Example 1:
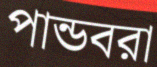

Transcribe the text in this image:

পান্ডবরা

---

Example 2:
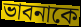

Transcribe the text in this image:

ভাবনাকে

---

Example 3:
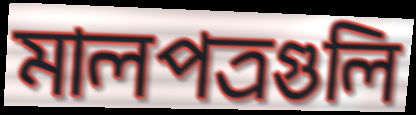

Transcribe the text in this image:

মালপত্রগুলি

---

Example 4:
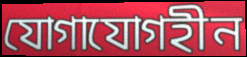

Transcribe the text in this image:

যোগাযোগহীন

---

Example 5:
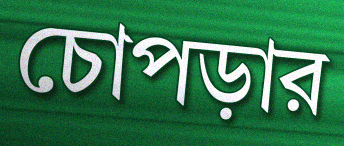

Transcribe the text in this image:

চোপড়ার